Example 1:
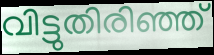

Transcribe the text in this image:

വിട്ടുതിരിഞ്ഞ്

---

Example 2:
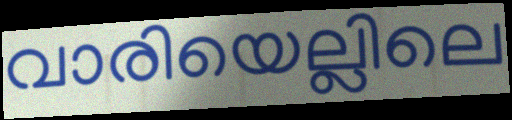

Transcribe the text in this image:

വാരിയെല്ലിലെ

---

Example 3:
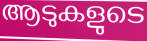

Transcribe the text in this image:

ആടുകളുടെ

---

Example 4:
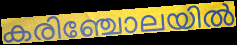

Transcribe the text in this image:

കരിഞ്ചോലയിൽ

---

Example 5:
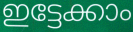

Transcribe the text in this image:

ഇട്ടേക്കാം